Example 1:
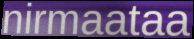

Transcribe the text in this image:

nirmaataa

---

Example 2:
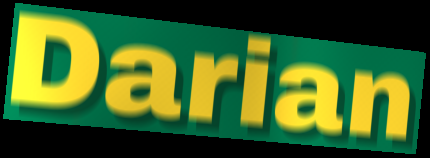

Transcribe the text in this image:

Darian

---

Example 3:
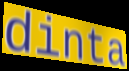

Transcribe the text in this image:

dinta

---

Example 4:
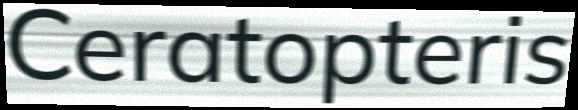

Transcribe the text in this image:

Ceratopteris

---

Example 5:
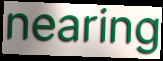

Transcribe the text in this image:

nearing